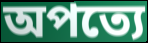
অপত্যে